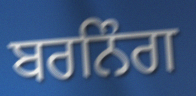
ਬਰਨਿੰਗ